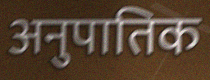
अनुपातिक